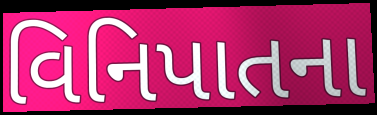
વિનિપાતના